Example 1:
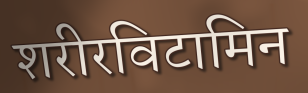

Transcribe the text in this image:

शरीरविटामिन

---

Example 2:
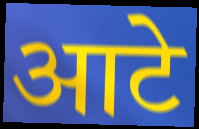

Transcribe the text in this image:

आटे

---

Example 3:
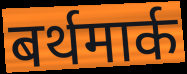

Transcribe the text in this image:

बर्थमार्क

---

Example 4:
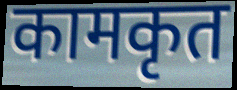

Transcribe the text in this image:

कामकृत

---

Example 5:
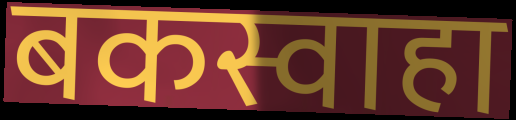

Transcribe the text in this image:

बकस्वाहा